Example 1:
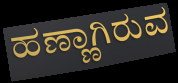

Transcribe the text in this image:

ಹಣ್ಣಾಗಿರುವ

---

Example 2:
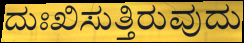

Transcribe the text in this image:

ದುಃಖಿಸುತ್ತಿರುವುದು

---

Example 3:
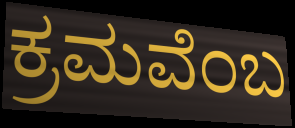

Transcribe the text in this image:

ಕ್ರಮವೆಂಬ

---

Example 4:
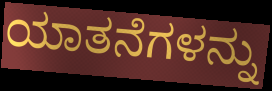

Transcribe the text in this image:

ಯಾತನೆಗಳನ್ನು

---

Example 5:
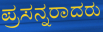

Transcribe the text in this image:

ಪ್ರಸನ್ನರಾದರು